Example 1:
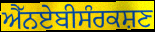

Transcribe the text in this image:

ਐੱਨਏਬੀਸੰਰਕਸ਼ਣ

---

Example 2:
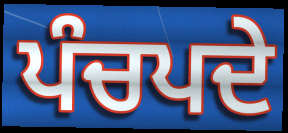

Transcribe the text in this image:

ਪੰਚਪਦੇ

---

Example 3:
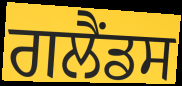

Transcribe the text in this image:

ਗਲੈਂਡਸ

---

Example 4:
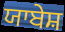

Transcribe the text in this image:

ਯਾਬੇਸ਼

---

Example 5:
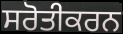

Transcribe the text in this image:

ਸਰੋਤੀਕਰਨ